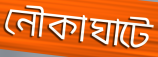
নৌকাঘাটে